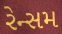
રેન્સમ